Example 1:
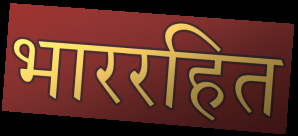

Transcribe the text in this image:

भाररहित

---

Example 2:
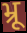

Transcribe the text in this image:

भ्रू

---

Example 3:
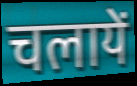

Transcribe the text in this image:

चलायें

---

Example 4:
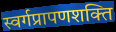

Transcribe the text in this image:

स्वर्गप्रापणशक्ति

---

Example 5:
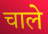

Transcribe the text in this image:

चाले